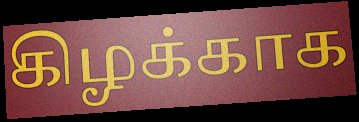
கிழக்காக